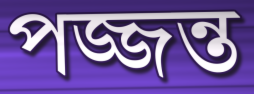
পজ্জন্ত